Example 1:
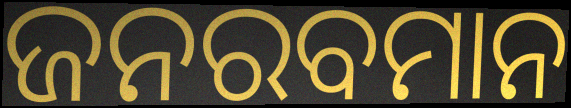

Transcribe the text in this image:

ଜନରବମାନ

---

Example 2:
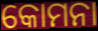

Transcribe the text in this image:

କୋମନା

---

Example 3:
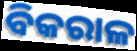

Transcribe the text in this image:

ବିକରାଳ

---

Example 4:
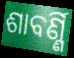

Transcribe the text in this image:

ଶାବର୍ଣ୍ଣି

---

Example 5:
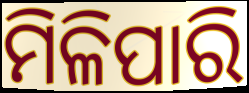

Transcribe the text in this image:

ମିଳିପାରି